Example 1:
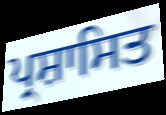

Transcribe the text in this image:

ਪ੍ਰਸ਼ਾਸਿਤ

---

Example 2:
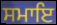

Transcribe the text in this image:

ਸਮਾਇ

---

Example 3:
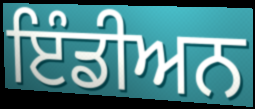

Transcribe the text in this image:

ਇੰਡੀਅਨ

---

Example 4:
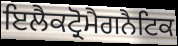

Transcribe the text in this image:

ਇਲੈਕਟ੍ਰੋਮੈਗਨੈਟਿਕ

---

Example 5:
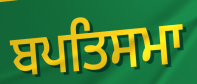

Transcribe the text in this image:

ਬਪਤਿਸਮਾ